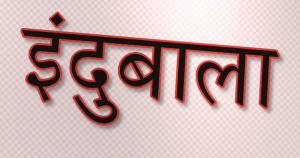
इंदुबाला